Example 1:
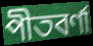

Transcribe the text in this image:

পীতবৰ্ণা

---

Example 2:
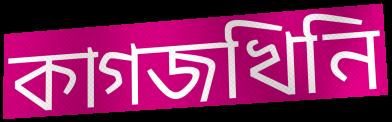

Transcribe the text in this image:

কাগজখিনি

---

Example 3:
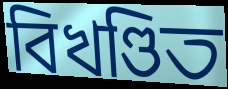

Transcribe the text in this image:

বিখণ্ডিত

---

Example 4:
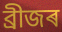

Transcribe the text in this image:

ব্ৰীজৰ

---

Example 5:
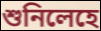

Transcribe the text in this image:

শুনিলেহে